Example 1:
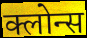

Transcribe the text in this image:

क्लोन्स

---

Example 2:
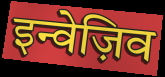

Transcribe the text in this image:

इन्वेज़िव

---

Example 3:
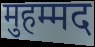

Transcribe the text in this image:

मुहम्‍मद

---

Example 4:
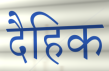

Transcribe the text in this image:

दैहिक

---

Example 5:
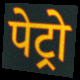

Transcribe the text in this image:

पेट्रो